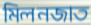
মিলনজাত